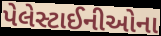
પેલેસ્ટાઈનીઓના